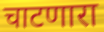
चाटणारा